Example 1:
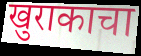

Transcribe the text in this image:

खुराकाचा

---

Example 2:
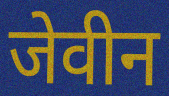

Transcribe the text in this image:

जेवीन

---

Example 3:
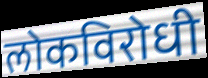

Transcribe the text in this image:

लोकविरोधी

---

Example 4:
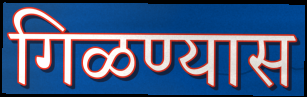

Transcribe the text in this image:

गिळण्यास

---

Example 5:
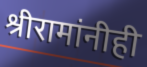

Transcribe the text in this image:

श्रीरामांनीही